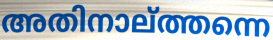
അതിനാല്ത്തന്നെ